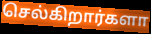
செல்கிறார்களா